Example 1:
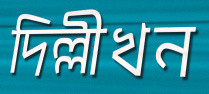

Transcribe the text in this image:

দিল্লীখন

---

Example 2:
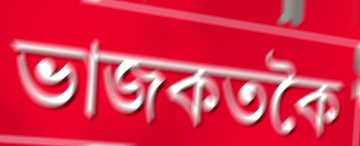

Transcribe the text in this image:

ভাজকতকৈ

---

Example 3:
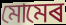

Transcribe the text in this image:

মোমেৰ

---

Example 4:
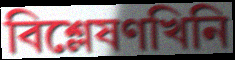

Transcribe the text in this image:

বিশ্লেষণখিনি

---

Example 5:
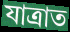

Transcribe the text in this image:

যাত্ৰাত